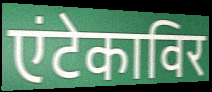
एंटेकाविर